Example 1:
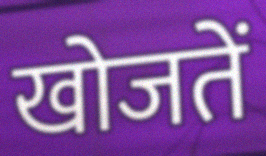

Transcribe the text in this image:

खोजतें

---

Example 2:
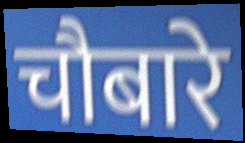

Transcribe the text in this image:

चौबारे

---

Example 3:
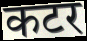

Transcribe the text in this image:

कटर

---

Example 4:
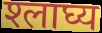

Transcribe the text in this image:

श्लाघ्य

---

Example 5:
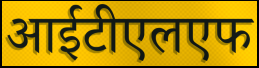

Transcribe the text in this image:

आईटीएलएफ